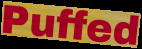
Puffed